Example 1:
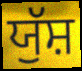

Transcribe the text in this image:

ਯੁੱਸ਼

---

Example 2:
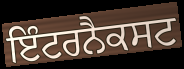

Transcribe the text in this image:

ਇੰਟਰਨੈਕਸਟ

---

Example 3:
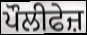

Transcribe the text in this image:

ਪੌਲੀਫੇਜ਼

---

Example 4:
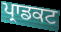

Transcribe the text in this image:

ਪ੍ਰਾਡਕਟ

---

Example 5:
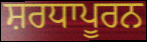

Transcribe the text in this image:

ਸ਼ਰਧਾਪੂਰਨ